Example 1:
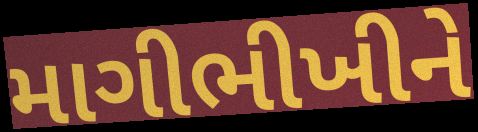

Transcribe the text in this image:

માગીભીખીને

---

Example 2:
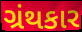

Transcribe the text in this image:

ગ્રંથકાર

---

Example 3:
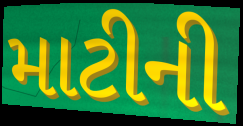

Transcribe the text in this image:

માટીની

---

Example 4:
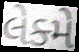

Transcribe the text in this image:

લેક્મે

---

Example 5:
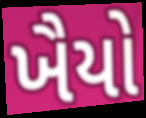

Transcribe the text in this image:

ખૈયો